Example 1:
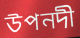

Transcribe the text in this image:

উপনদী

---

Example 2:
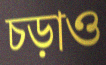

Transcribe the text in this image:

চড়াও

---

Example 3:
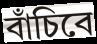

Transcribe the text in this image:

বাঁচিবে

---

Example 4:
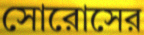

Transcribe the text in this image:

সোরোসের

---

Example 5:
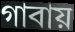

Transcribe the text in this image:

গাবায়